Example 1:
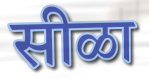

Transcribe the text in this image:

सीळा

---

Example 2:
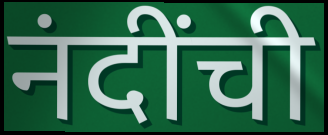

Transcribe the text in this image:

नंदींची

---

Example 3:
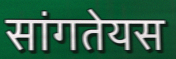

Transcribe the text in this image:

सांगतेयस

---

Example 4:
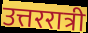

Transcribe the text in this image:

उत्तररात्री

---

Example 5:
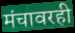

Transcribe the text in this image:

मंचावरही